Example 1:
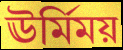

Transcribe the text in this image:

ঊর্মিময়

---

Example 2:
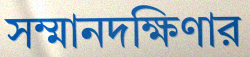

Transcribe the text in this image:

সম্মানদক্ষিণার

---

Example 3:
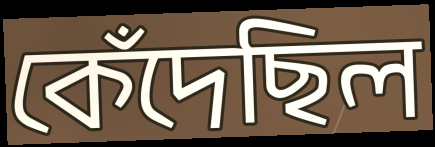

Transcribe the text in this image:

কেঁদেছিল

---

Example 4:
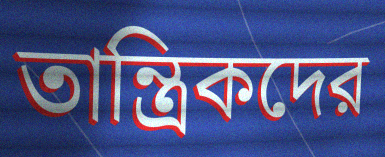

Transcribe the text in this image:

তান্ত্রিকদের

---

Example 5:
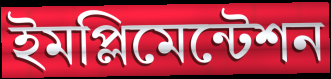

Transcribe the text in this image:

ইমপ্লিমেন্টেশন